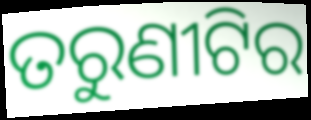
ତରୁଣୀଟିର